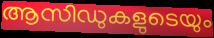
ആസിഡുകളുടെയും